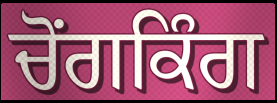
ਚੋਂਗਕਿੰਗ